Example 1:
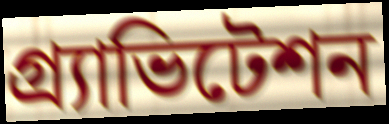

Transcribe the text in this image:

গ্র্যাভিটেশন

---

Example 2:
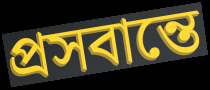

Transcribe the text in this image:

প্রসবান্তে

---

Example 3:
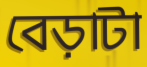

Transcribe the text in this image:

বেড়াটা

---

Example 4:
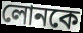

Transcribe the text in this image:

লোনকে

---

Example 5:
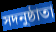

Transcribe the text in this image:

সদনুষ্ঠাতা